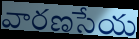
వారణసేయ